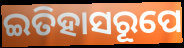
ଇତିହାସରୂପେ